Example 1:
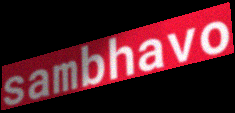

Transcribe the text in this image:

sambhavo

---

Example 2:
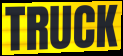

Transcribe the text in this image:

TRUCK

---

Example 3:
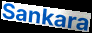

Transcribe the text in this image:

Sankara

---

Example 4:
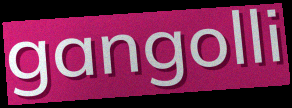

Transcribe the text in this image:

gangolli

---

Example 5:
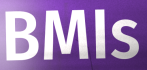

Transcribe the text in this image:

BMIs